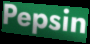
Pepsin